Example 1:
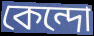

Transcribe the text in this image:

কেন্দো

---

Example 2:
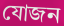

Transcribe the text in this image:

যোজন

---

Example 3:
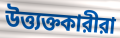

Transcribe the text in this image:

উত্ত্যক্তকারীরা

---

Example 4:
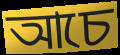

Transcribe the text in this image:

আচে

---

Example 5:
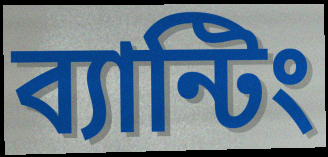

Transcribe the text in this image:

ব্যান্টিং